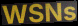
WSNs